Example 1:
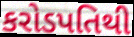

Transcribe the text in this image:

કરોડપતિથી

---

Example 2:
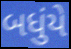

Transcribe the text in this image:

બધુંયે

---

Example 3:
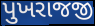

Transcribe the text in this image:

પુખરાજજી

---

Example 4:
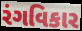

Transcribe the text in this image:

રંગવિકાર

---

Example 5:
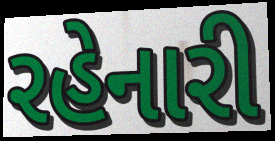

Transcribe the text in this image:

રહેનારી